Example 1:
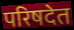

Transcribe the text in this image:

परिषदेत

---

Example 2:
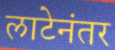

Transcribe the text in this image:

लाटेनंतर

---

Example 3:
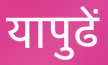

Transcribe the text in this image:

यापुढें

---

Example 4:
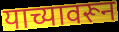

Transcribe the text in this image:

याच्यावरून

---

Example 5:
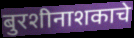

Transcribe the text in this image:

बुरशीनाशकाचे